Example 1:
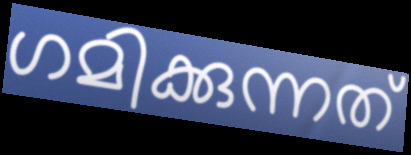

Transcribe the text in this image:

ഗമിക്കുന്നത്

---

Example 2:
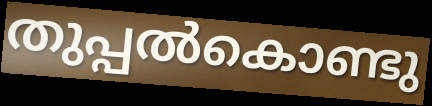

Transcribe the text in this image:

തുപ്പൽകൊണ്ടു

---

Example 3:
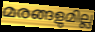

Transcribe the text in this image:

മരങ്ങളുമില്ല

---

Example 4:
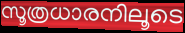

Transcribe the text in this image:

സൂത്രധാരനിലൂടെ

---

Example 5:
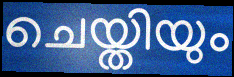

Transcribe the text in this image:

ചെയ്തിയും